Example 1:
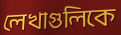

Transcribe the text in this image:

লেখাগুলিকে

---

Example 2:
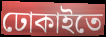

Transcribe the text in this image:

ঢোকাইতে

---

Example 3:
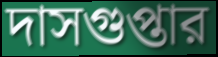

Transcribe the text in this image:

দাসগুপ্তার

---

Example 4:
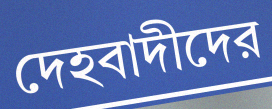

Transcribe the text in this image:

দেহবাদীদের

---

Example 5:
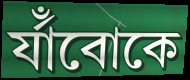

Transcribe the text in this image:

র্যাঁবোকে